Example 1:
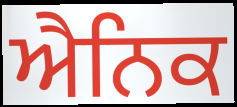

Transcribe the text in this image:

ਐਨਿਕ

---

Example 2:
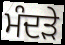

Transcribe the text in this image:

ਮੰਦੜੇ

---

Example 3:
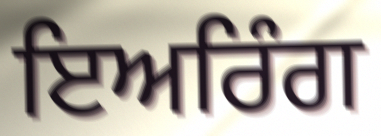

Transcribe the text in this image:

ਇਅਰਿੰਗ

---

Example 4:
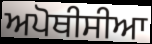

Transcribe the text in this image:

ਅਪੋਥੀਸੀਆ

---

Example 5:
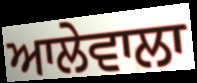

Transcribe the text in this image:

ਆਲੇਵਾਲਾ